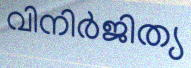
വിനിർജിത്യ